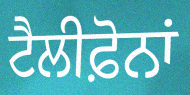
ਟੈਲੀਫ਼ੋਨਾਂ